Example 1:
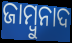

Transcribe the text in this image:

ଜାମ୍ବୁନାଦ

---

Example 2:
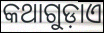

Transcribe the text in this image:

କଥାଗୁଡ଼ାଏ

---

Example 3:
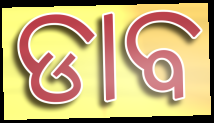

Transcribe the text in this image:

ଡାବ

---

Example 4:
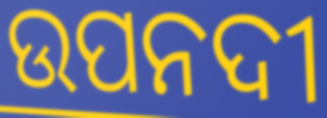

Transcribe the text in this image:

ଉପନଦୀ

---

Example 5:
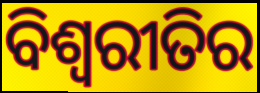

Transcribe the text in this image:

ବିଶ୍ଵରୀତିର